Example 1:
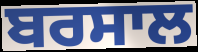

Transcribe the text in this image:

ਬਰਸਾਲ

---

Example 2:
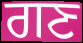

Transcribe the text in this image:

ਗਣ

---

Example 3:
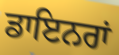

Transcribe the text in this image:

ਡਾਇਨਰਾਂ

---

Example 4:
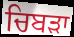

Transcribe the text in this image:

ਚਿਬੜਾ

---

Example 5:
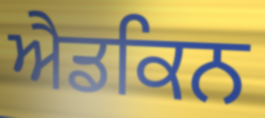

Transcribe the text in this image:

ਐਡਕਿਨ